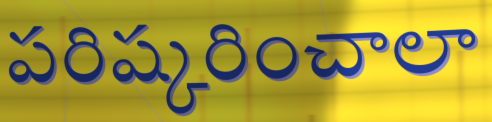
పరిష్కరించాలా